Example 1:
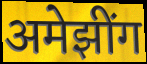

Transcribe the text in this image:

अमेझींग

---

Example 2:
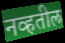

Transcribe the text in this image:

नव्हतील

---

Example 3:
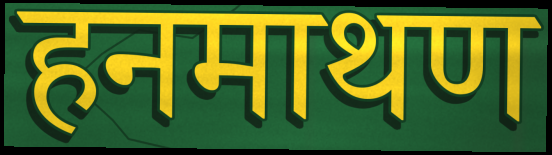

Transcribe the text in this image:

हनमाथण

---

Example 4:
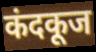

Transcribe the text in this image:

कंदकूज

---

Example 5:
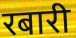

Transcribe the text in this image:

रबारी